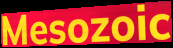
Mesozoic